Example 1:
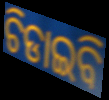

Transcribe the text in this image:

ଚିଡାଇବି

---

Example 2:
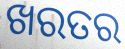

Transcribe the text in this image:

ଖରତର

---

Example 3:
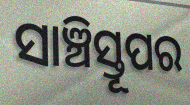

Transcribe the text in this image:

ସାଞ୍ଚିସ୍ତୂପର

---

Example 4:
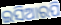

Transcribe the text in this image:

ଇସିଆରପି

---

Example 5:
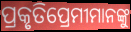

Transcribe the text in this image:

ପ୍ରକୃତିପ୍ରେମୀମାନଙ୍କୁ